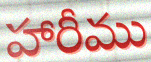
హారీము